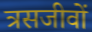
त्रसजीवों